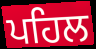
ਪਹਿਲ